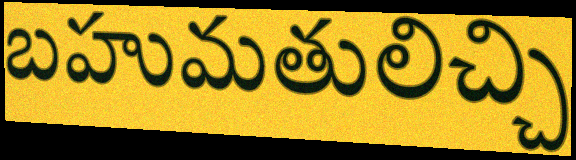
బహుమతులిచ్చి